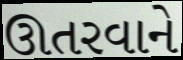
ઊતરવાને